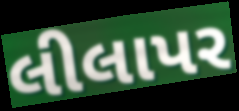
લીલાપર